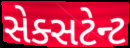
સેક્સટેન્ટ